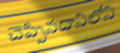
చెప్పినదానిలోని